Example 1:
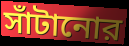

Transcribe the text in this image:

সাঁটানোর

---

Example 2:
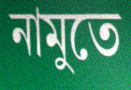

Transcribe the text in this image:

নামুতে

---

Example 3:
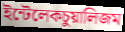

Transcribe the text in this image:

ইন্টেলেকচুয়ালিজম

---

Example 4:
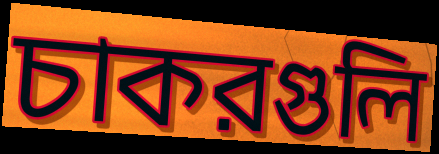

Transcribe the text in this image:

চাকরগুলি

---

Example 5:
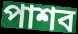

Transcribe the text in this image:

পাশব